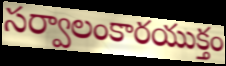
సర్వాలంకారయుక్తం